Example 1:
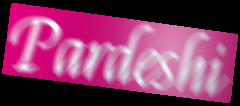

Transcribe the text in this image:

Pardeshi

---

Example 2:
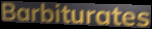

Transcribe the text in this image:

Barbiturates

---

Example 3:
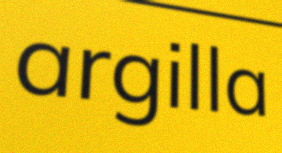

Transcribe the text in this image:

argilla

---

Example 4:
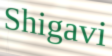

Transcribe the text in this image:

Shigavi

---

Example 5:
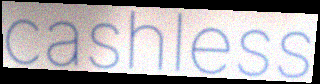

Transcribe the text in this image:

cashless